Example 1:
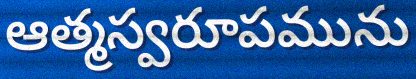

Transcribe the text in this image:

ఆత్మస్వరూపమును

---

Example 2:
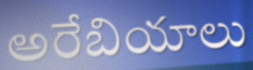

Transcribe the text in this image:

అరేబియాలు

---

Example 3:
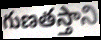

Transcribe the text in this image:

గుణతస్తాని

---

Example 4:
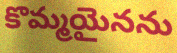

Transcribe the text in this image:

కొమ్మయైనను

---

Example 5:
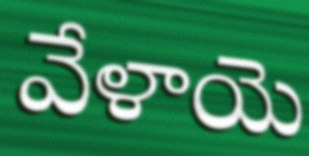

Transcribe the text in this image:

వేళాయె